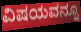
ವಿಷಯವನ್ನೂ